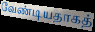
வேண்டியதாகத்